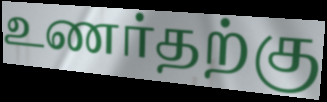
உணர்தற்கு